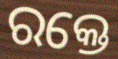
ରକ୍ତେ